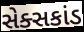
સેક્સકાંડ